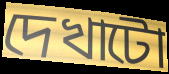
দেখাটো